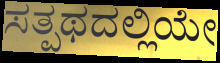
ಸತ್ಪಥದಲ್ಲಿಯೇ